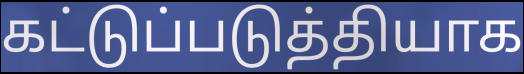
கட்டுப்படுத்தியாக